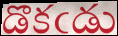
డొకఁడు